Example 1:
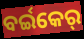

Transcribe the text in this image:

ବର୍ଇକେର୍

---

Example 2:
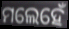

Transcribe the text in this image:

ମଲେହେଁ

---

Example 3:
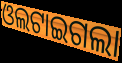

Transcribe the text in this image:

ଓଲଟାଇଗଲା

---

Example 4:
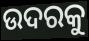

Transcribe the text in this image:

ଉଦରକୁ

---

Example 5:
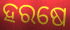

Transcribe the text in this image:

ହରଷେ